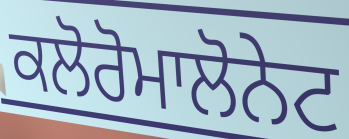
ਕਲੋਰੋਮਾਲੋਨੇਟ